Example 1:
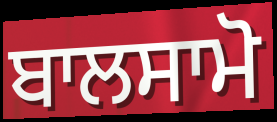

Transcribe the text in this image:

ਬਾਲਸਾਮੋ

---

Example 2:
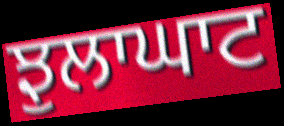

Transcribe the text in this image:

ਝੁਲਾਘਾਟ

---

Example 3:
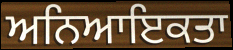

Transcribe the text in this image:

ਅਨਿਆਇਕਤਾ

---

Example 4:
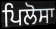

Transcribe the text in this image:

ਪਿਲੋਸਾ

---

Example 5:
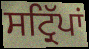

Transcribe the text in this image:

ਸਟ੍ਰਿੱਪਾਂ